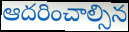
ఆదరించాల్సిన